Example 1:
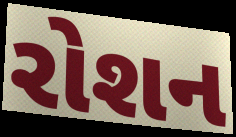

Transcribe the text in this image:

રોશન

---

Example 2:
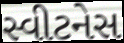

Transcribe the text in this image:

સ્વીટનેસ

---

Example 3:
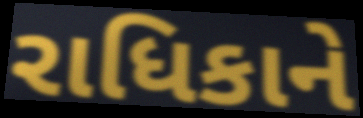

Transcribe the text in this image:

રાધિકાને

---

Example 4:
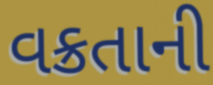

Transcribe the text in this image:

વક્રતાની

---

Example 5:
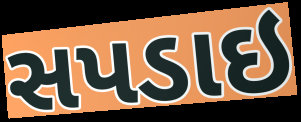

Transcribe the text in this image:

સપડાઇ